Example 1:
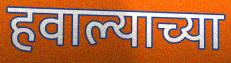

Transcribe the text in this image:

हवाल्याच्या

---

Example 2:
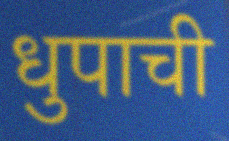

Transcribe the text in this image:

धुपाची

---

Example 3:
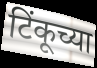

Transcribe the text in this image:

टिंकूच्या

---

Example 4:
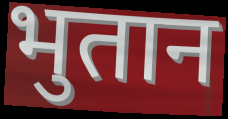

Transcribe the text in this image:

भुतान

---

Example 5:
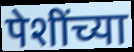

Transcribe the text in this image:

पेशींच्या